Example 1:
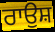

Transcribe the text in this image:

ਰਾਉਸ਼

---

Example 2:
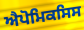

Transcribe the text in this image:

ਐਪੋਮਿਕਸਿਸ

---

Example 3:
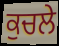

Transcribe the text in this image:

ਕੁਚਲੇ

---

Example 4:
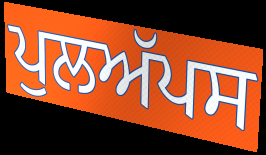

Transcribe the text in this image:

ਪੁਲਅੱਪਸ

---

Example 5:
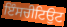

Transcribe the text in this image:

ਇੰਸਚੀਟਿਉਟ